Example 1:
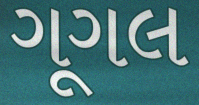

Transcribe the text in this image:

ગૂગલ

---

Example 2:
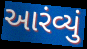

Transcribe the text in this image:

આરંવ્યું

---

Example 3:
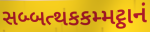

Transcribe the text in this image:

સબ્બત્થકકમ્મટ્ઠાનં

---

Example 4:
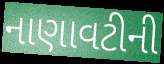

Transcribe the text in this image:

નાણાવટીની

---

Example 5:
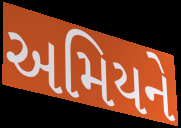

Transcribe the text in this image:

અમિયને